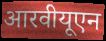
आरवीयूएन